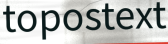
topostext